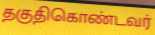
தகுதிகொண்டவர்